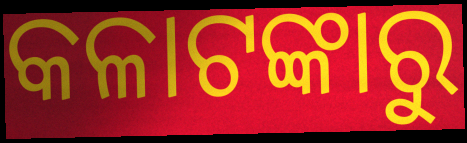
କଳାଟଙ୍କାରୁ